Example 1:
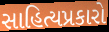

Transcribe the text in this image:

સાહિત્યપ્રકારો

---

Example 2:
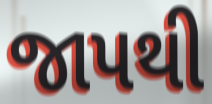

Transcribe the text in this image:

જાપથી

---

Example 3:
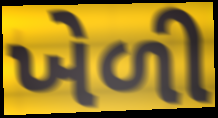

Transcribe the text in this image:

ખેળી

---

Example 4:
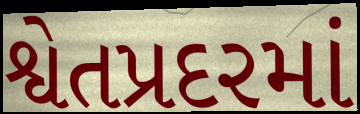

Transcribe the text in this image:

શ્વેતપ્રદરમાં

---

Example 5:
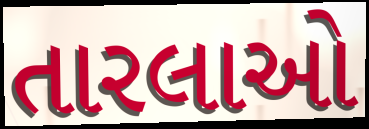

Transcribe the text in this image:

તારલાઓ